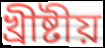
খ্ৰীষ্টীয়